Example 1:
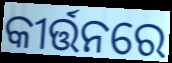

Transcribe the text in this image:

କୀର୍ତ୍ତନରେ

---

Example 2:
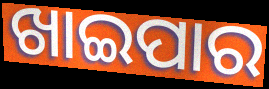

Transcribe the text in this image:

ଖାଇପାର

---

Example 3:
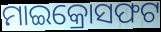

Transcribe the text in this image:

ମାଇକ୍ରୋସଫଟ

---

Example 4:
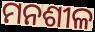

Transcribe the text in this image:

ମନଶୀଳ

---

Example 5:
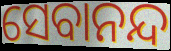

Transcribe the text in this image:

ସେବାନନ୍ଦ